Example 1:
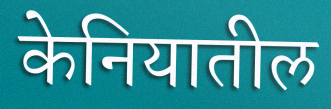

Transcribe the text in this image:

केनियातील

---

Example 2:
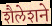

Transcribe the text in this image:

शैलेशने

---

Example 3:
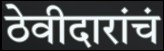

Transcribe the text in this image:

ठेवीदारांचं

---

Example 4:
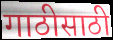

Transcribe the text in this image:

गाठीसाठी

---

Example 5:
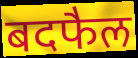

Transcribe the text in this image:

बदफैल